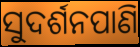
ସୁଦର୍ଶନପାଣି